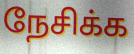
நேசிக்க